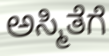
ಅಸ್ಮಿತೆಗೆ